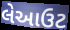
લેઆઉટ